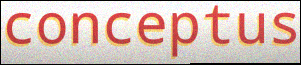
conceptus